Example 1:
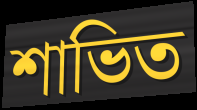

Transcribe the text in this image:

শাভিত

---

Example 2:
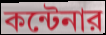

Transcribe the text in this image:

কন্টেনার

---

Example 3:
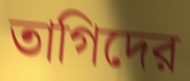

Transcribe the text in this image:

তাগিদের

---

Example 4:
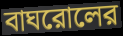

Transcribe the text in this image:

বাঘরোলের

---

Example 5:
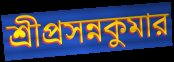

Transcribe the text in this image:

শ্রীপ্রসন্নকুমার